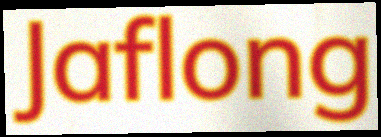
Jaflong